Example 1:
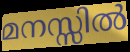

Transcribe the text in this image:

മനസ്സിൽ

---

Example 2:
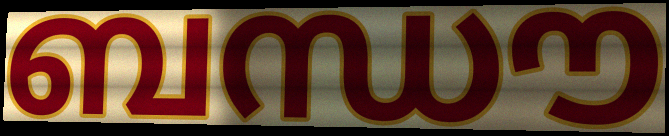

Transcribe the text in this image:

ബന്ധൗ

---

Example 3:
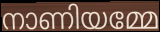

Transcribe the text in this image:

നാണിയമ്മേ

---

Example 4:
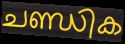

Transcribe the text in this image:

ചണ്ഡിക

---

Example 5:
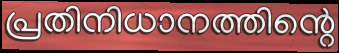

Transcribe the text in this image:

പ്രതിനിധാനത്തിന്റെ